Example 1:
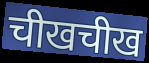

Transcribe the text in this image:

चीखचीख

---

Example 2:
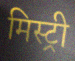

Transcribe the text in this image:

मिस्ट्री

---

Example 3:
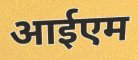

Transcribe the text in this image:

आईएम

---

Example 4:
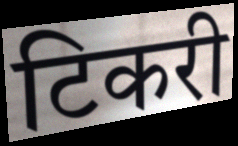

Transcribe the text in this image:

टिकरी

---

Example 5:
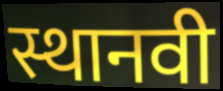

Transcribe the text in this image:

स्थानवी